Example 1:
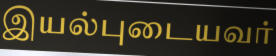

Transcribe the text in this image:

இயல்புடையவர்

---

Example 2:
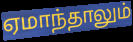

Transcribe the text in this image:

ஏமாந்தாலும்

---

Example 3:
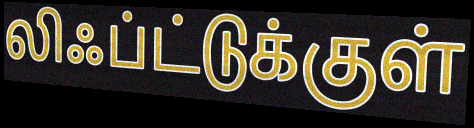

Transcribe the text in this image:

லிஃப்ட்டுக்குள்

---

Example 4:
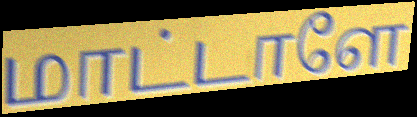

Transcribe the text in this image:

மாட்டாளே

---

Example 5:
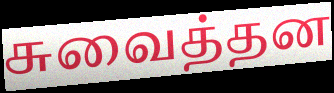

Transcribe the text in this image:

சுவைத்தன